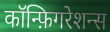
कॉन्फ़िगरेशन्स